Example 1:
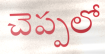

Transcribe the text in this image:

చెప్పలో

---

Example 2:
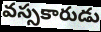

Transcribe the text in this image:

వస్సకారుడు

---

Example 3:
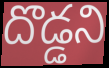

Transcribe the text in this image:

దొడ్డని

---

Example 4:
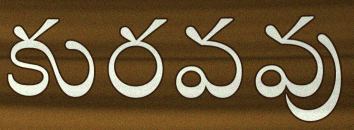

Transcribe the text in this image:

కురవవు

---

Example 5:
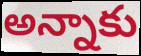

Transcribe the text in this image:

అన్నాకు